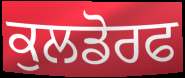
ਕੁਲਡੋਰਫ